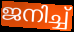
ജനിച്ച്